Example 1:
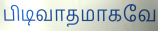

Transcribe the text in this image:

பிடிவாதமாகவே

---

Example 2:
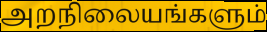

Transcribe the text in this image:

அறநிலையங்களும்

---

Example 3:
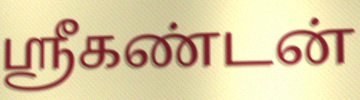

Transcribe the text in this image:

ஸ்ரீகண்டன்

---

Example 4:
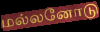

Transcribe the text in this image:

மல்லனோடு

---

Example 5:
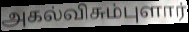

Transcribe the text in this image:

அகல்விசும்புளார்